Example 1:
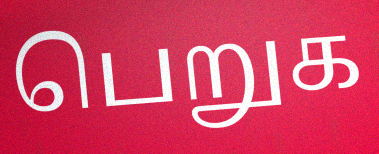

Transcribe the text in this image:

பெறுக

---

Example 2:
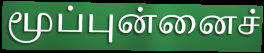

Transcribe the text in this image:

மூப்புன்னைச்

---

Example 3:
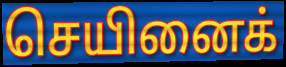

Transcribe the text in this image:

செயினைக்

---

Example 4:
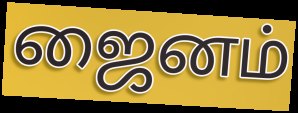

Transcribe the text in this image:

ஜைனம்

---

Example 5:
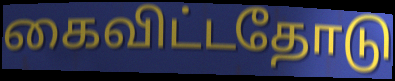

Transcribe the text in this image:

கைவிட்டதோடு